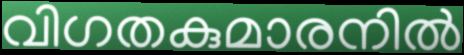
വിഗതകുമാരനിൽ